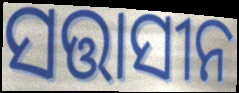
ସତ୍ତାସୀନ